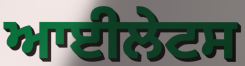
ਆਈਲੇਟਸ